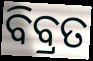
ବିବ୍ରତ